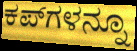
ಕಪ್‌ಗಳನ್ನೂ